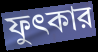
ফুৎকার